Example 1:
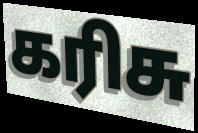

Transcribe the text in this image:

கரிசு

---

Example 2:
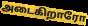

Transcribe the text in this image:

அடைகிறாரோ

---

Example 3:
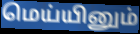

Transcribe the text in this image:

மெய்யினும்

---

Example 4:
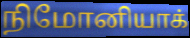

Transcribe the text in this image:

நிமோனியாக்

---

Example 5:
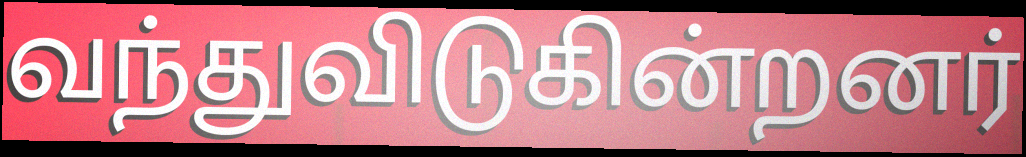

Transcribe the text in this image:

வந்துவிடுகின்றனர்